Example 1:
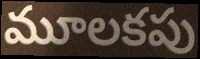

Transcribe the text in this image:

మూలకపు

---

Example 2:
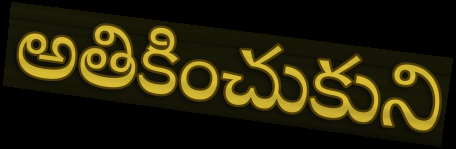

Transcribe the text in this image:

అతికించుకుని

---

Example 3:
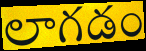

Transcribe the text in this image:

లాగడం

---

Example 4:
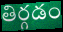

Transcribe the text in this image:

తిర్గడం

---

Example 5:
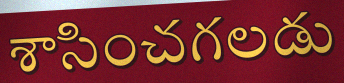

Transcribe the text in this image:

శాసించగలడు